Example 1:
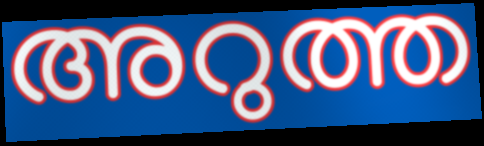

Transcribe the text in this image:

അറുത്ത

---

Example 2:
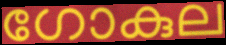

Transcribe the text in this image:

ഗോകുല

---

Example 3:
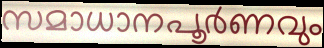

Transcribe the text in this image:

സമാധാനപൂർണവും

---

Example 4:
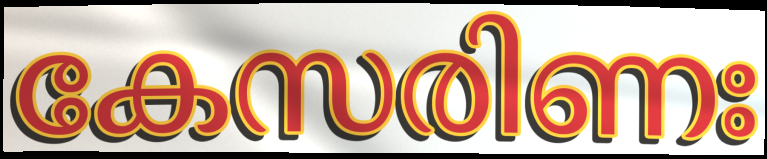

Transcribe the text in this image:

കേസരിണഃ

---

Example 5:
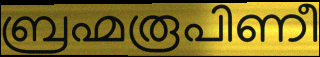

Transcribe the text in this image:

ബ്രഹ്മരൂപിണീ